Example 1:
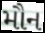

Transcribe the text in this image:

મૌન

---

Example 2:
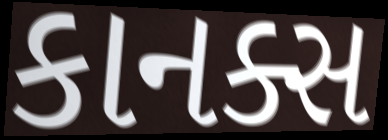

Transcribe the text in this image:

કાનક્સ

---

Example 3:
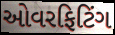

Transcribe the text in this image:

ઓવરફિટિંગ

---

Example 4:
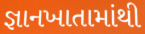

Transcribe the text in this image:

જ્ઞાનખાતામાંથી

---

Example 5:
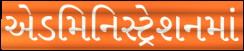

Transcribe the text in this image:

એડમિનિસ્ટ્રેશનમાં